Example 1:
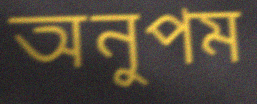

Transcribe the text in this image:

অনুপম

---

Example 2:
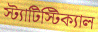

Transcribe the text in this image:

স্ট্যাটিস্টিক্যাল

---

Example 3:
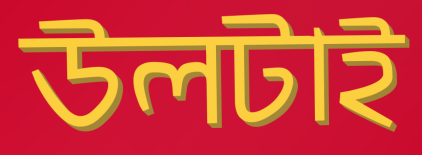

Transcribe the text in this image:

উলটাই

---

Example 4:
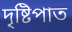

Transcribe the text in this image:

দৃষ্টিপাত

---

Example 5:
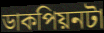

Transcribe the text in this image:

ডাকপিয়নটা